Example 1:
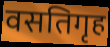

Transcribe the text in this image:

वसतिगृह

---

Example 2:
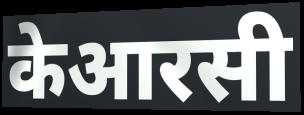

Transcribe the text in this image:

केआरसी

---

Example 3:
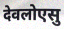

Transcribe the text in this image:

देवलोएसु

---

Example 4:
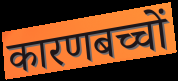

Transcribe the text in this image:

कारणबच्चों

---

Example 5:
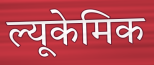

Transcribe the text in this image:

ल्यूकेमिक